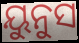
ୟୁନୁସ